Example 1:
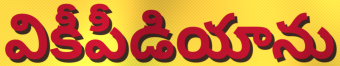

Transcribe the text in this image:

వికీపీడియాను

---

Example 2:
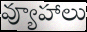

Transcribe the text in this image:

వ్యూహాలు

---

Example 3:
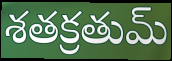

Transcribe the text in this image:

శతక్రతుమ్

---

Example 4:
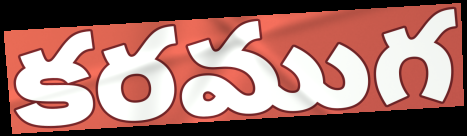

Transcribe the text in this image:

కరముగ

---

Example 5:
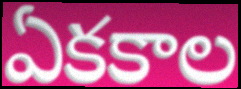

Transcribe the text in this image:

ఏకకాల